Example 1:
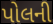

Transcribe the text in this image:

પોલની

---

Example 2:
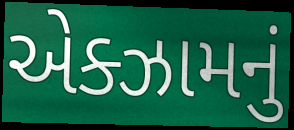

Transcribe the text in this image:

એક્ઝામનું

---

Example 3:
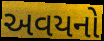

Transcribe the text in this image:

અવયનો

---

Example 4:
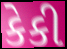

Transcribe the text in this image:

કેકી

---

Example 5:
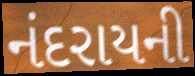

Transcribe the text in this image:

નંદરાયની